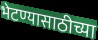
भेटण्यासाठीच्या